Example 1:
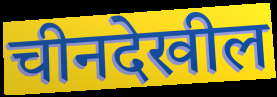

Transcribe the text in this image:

चीनदेखील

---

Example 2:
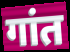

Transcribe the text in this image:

गांत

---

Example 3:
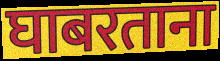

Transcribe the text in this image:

घाबरताना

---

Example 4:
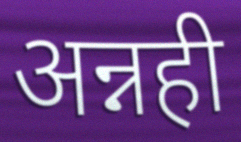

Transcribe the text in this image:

अन्नही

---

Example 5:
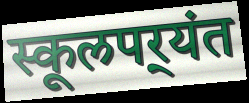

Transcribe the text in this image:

स्कूलपर्यंत